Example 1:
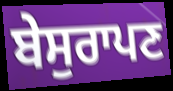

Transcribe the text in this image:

ਬੇਸੁਰਾਪਣ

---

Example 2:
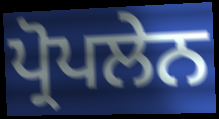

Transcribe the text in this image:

ਪ੍ਰੋਪਲੇਨ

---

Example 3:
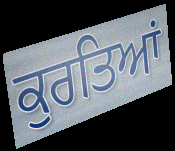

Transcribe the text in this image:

ਕੁਰਤਿਆਂ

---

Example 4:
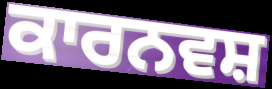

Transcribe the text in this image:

ਕਾਰਨਵਸ਼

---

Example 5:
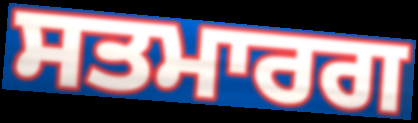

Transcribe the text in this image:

ਸਤਮਾਰਗ